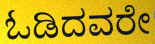
ಓಡಿದವರೇ